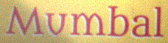
Mumbal